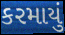
કરમાયું